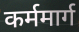
कर्ममार्ग